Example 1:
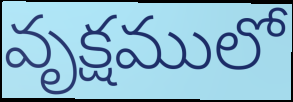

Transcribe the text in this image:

వృక్షములో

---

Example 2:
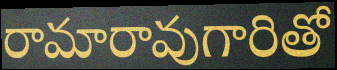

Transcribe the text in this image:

రామారావుగారితో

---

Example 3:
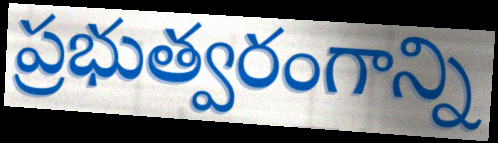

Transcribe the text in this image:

ప్రభుత్వరంగాన్ని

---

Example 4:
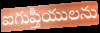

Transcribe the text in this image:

ఐగుప్తీయులను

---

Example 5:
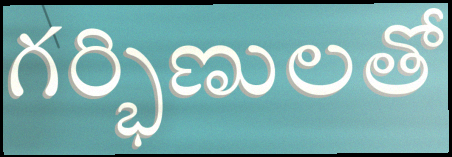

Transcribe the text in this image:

గర్భిణులతో